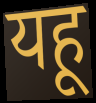
यहू